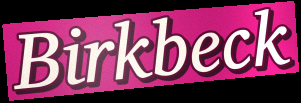
Birkbeck